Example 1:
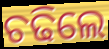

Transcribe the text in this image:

ଚଢିଲେ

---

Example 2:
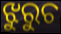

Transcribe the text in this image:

ଝୁରୁଚ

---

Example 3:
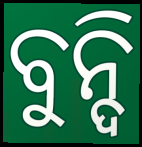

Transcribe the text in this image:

ବୁନ୍ଦି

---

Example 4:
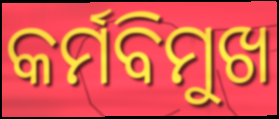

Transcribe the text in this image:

କର୍ମବିମୁଖ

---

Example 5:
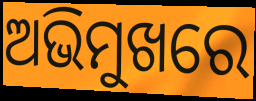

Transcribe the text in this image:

ଅଭିମୁଖରେ